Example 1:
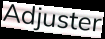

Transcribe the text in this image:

Adjuster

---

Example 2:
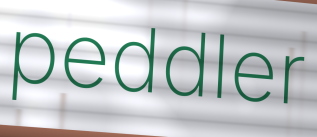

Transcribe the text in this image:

peddler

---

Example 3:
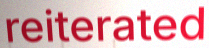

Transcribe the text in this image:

reiterated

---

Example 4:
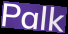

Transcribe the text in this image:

Palk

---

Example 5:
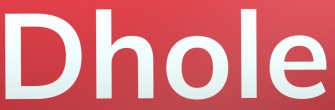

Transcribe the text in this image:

Dhole